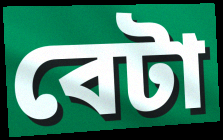
বেটা